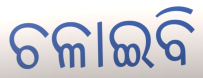
ଚଳାଇବି